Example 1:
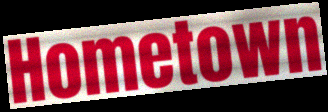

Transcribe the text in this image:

Hometown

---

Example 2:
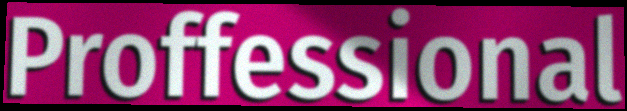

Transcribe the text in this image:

Proffessional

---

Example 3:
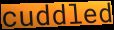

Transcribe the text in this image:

cuddled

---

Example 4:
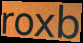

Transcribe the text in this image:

roxb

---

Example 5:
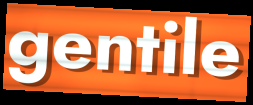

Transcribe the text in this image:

gentile